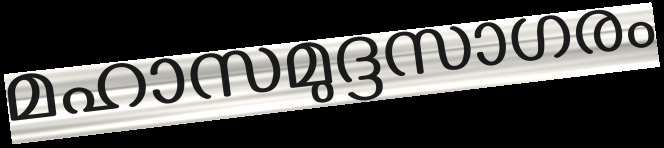
മഹാസമുദ്ദസാഗരം